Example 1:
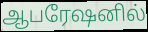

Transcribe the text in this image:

ஆபரேஷனில்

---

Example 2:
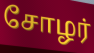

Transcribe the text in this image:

சோழர்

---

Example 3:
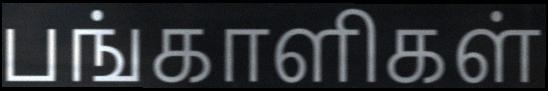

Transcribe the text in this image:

பங்காளிகள்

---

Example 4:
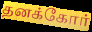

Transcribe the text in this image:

தனக்கோர்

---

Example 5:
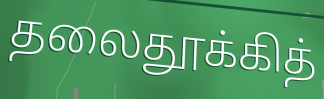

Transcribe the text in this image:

தலைதூக்கித்